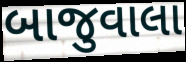
બાજુવાલા